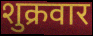
शुक्रवार